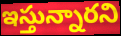
ఇస్తున్నారని